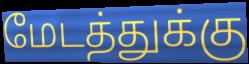
மேடத்துக்கு